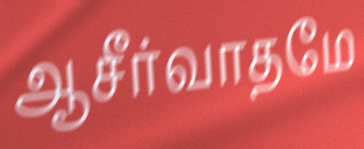
ஆசீர்வாதமே